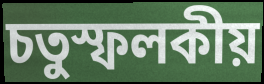
চতুস্ফলকীয়